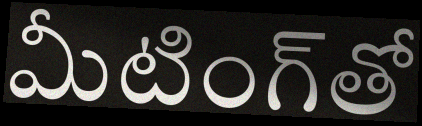
మీటింగ్‌తో